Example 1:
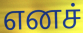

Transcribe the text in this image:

எனச்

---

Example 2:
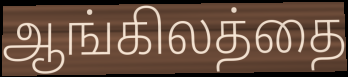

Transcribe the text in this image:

ஆங்கிலத்தை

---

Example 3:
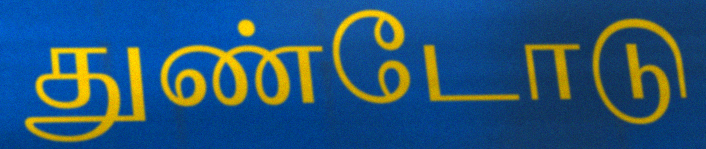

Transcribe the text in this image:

துண்டோடு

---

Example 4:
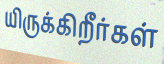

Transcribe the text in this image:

யிருக்கிறீர்கள்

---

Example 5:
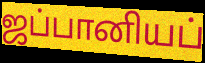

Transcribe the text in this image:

ஜப்பானியப்